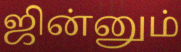
ஜின்னும்